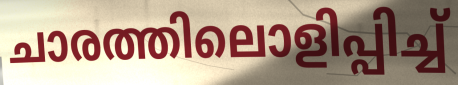
ചാരത്തിലൊളിപ്പിച്ച്